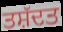
ਤਸ਼ੱਦਤ